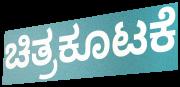
ಚಿತ್ರಕೂಟಕೆ